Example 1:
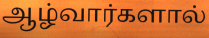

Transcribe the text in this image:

ஆழ்வார்களால்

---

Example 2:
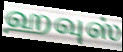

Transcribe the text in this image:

ஹவுஸ்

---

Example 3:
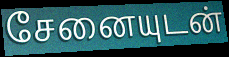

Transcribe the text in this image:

சேனையுடன்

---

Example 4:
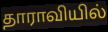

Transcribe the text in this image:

தாராவியில்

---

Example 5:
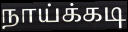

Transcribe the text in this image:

நாய்க்கடி